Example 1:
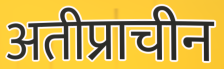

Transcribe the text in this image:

अतीप्राचीन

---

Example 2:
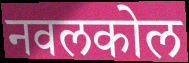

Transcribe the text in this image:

नवलकोल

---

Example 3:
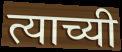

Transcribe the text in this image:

त्याच्यी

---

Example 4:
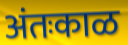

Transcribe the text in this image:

अंतःकाळ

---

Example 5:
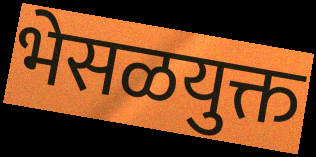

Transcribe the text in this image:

भेसळयुक्त